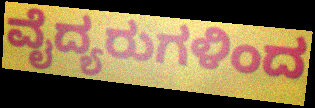
ವೈದ್ಯರುಗಳಿಂದ